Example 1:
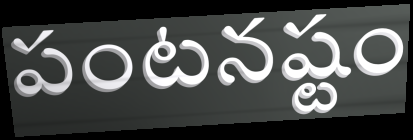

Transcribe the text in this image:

పంటనష్టం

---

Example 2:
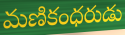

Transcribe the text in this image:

మణికంధరుడు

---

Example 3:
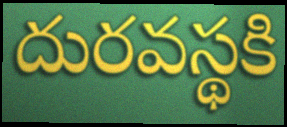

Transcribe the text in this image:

దురవస్థకి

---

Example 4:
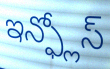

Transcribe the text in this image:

ఇన్ఫ్లోస్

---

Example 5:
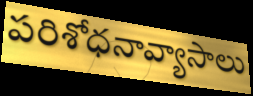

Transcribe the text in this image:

పరిశోధనావ్యాసాలు